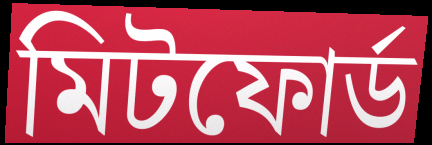
মিটফোর্ড